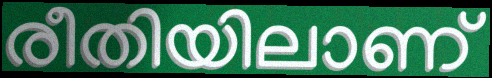
രീതിയിലാണ്